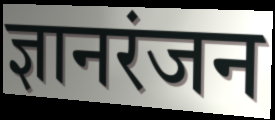
ज्ञानरंजन